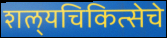
शल्यचिकित्सेचे